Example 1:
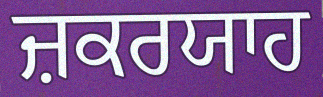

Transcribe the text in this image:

ਜ਼ਕਰਯਾਹ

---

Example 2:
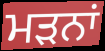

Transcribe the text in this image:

ਮੜਨਾਂ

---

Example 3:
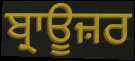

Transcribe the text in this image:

ਬ੍ਰਾਊਜ਼ਰ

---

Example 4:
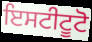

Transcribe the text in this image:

ਇਸਟੀਟੂਟੋ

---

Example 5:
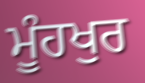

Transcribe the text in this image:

ਮੂੰਹਖੁਰ